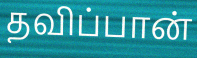
தவிப்பான்